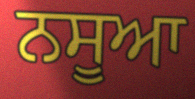
ਨਸੂਆ